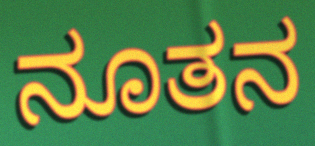
ನೂತನ